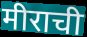
मीराची